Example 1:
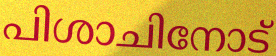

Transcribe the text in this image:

പിശാചിനോട്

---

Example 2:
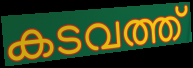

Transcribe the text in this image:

കടവത്ത്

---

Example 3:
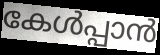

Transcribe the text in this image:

കേൾപ്പാൻ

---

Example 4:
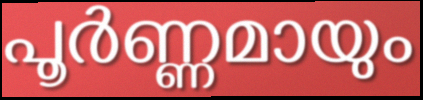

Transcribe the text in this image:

പൂർണ്ണമായും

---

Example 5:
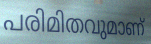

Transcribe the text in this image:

പരിമിതവുമാണ്